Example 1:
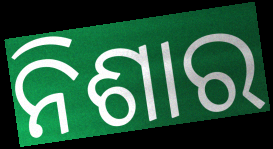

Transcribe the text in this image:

ନିଶାର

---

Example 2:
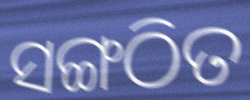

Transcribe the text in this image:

ସଙ୍ଗଠିତ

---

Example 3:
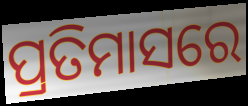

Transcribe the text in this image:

ପ୍ରତିମାସରେ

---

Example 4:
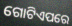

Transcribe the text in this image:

ଗୋଟିଏପରେ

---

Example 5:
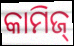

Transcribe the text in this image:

କାମିଜ୍